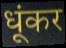
धूंकर